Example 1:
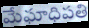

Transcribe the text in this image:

మేఘాధిపతి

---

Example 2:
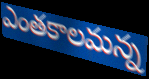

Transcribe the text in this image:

ఎంతకాలమన్న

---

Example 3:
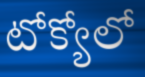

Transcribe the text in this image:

టోక్యోలో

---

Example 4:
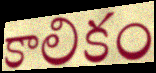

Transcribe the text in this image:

కాలికం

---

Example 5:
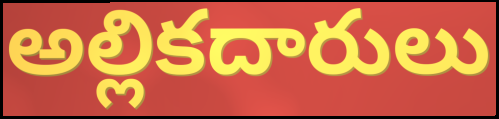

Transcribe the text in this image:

అల్లికదారులు